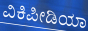
ವಿಕಿಪೀಡಿಯಾ